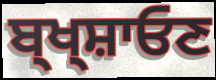
ਬ੍ਖ੍ਸ਼ਾਓਣ